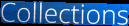
Collections